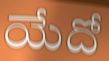
యేదో